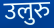
उलुरु